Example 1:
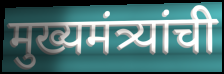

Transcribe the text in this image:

मुख्यमंत्र्यांची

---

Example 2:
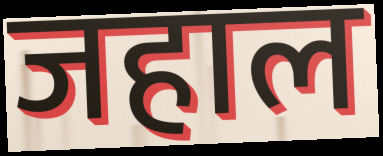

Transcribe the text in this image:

जहाल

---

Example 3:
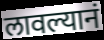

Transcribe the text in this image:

लावल्यानं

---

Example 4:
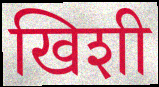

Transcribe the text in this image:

खिशी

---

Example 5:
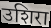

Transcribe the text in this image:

उशिरा